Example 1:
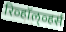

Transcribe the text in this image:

रिव्हॉल्व्हर्स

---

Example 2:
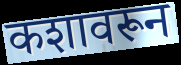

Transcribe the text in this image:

कशावरून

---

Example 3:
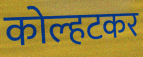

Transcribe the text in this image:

कोल्हटकर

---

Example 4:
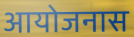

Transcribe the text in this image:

आयोजनास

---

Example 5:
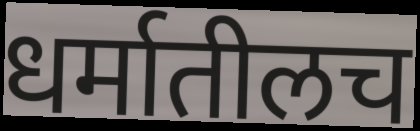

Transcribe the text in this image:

धर्मातीलच